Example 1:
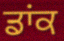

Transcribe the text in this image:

ਡਾਂਕ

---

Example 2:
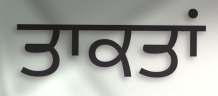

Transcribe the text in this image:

ਤਾਕਤਾਂ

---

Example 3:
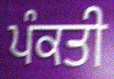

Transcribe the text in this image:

ਪੰਕਤੀ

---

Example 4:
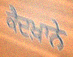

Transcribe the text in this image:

ਕੈਦਖ਼ਾਨੇ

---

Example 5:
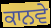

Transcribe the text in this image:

ਕਾਨਵੇ